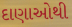
દાણાઓથી